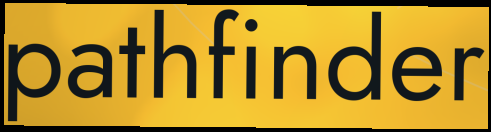
pathfinder